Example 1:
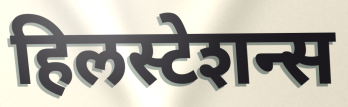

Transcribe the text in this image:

हिलस्टेशन्स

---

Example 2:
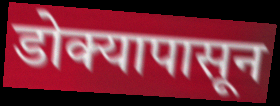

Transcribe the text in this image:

डोक्यापासून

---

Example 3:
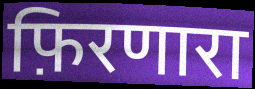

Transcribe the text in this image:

फ़िरणारा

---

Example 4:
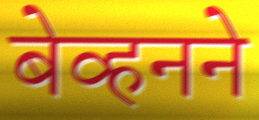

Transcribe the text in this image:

बेव्हनने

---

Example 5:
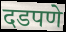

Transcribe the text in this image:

दडपणे